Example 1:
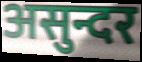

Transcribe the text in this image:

असुन्दर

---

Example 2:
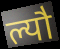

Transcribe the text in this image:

ल्यौ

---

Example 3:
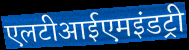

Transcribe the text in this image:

एलटीआईएमइंडट्री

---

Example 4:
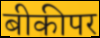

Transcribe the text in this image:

बीकीपर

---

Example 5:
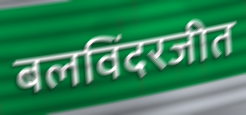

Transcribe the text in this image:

बलविंदरजीत